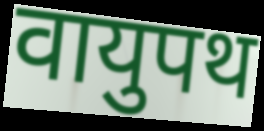
वायुपथ